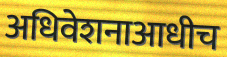
अधिवेशनाआधीच